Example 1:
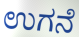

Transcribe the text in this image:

ಉಗನೆ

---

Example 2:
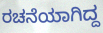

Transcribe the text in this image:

ರಚನೆಯಾಗಿದ್ದ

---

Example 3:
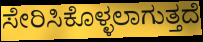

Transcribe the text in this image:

ಸೇರಿಸಿಕೊಳ್ಳಲಾಗುತ್ತದೆ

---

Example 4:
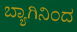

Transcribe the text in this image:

ಬ್ಯಾಗಿನಿಂದ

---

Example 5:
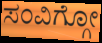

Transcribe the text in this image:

ಸಂವಿಗ್ಗೋ